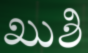
ಖುಶಿ